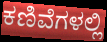
ಕಣಿವೆಗಳಲ್ಲಿ